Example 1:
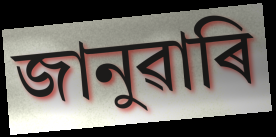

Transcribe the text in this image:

জানুৱাৰি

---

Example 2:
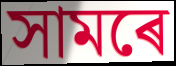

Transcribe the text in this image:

সামৰে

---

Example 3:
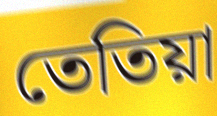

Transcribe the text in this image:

তেতিয়া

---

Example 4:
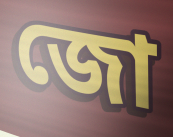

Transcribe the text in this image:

জো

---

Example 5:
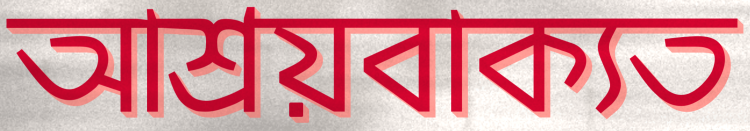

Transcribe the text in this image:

আশ্ৰয়বাক্যত